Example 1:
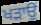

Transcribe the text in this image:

ਖੜਾਉਂ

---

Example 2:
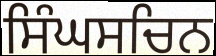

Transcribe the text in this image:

ਸਿੰਘਸਚਿਨ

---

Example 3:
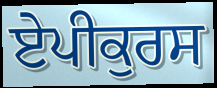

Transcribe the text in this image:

ਏਪੀਕੁਰਸ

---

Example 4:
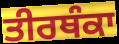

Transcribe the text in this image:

ਤੀਰਥੰਕਾ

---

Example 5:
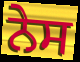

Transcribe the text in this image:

ਨੇਸ